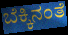
ಬೆಕ್ಕಿನಂತೆ